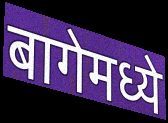
बागेमध्ये